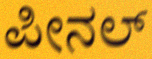
ಪೀನಲ್